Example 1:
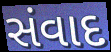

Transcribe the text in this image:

સંવાદ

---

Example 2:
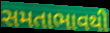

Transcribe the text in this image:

સમતાભાવથી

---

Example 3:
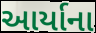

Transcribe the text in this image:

આર્યાના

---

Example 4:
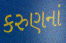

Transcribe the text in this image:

કરુણનાં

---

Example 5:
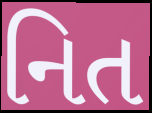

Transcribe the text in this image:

નિત